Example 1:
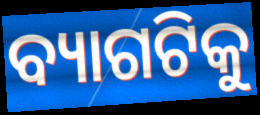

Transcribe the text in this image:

ବ୍ୟାଗଟିକୁ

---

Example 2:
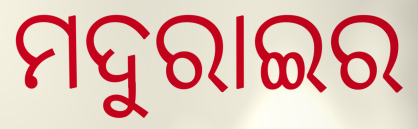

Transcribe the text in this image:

ମଦୁରାଇର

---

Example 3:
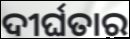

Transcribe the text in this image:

ଦୀର୍ଘତାର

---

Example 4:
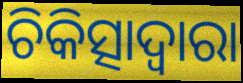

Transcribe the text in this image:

ଚିକିତ୍ସାଦ୍ଵାରା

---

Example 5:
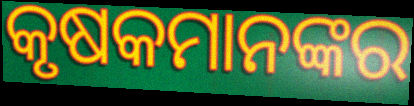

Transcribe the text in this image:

କୃଷକମାନଙ୍କର